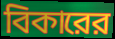
বিকারের